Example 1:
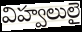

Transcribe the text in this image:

విహ్వలులై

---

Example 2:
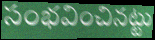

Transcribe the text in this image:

సంభవించినట్టు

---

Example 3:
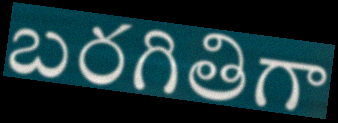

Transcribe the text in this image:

బరగితిగా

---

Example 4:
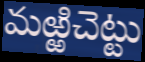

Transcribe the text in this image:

మఱ్ఱిచెట్టు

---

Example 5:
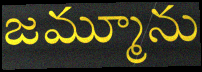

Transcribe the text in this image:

జమ్మూను